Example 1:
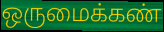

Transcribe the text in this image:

ஒருமைக்கண்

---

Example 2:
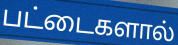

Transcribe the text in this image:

பட்டைகளால்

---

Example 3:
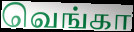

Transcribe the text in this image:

வெங்கா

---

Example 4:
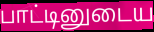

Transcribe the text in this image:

பாட்டினுடைய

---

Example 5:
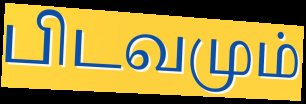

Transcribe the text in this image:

பிடவமும்